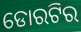
ଡୋରଟିର